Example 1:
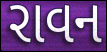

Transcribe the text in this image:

રાવન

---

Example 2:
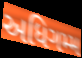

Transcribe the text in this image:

અધિગમ્મ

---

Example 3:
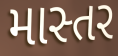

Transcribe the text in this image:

માસ્તર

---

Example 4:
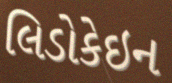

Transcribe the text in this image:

લિડોકેઇન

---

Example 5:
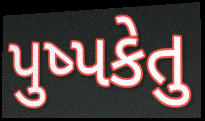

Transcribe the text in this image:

પુષ્પકેતુ